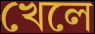
খেলে